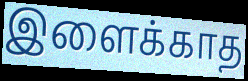
இளைக்காத